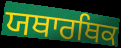
ਯਥਾਰਥਿਕ